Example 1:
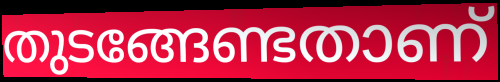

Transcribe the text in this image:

തുടങ്ങേണ്ടതാണ്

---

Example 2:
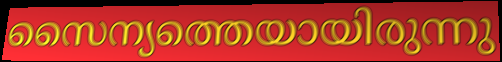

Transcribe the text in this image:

സൈന്യത്തെയായിരുന്നു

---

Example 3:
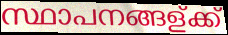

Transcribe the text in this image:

സ്ഥാപനങ്ങള്ക്ക്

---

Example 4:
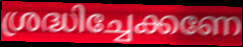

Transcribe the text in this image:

ശ്രദ്ധിച്ചേക്കണേ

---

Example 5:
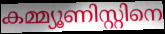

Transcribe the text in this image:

കമ്മ്യൂണിസ്റ്റിനെ